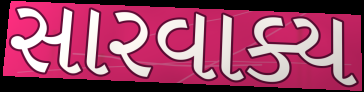
સારવાક્ય